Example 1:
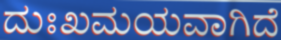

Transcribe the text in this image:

ದುಃಖಮಯವಾಗಿದೆ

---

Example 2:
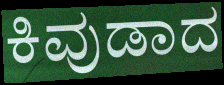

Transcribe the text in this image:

ಕಿವುಡಾದ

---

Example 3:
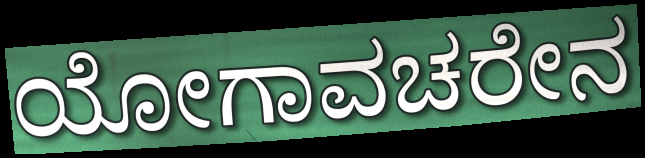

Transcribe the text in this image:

ಯೋಗಾವಚರೇನ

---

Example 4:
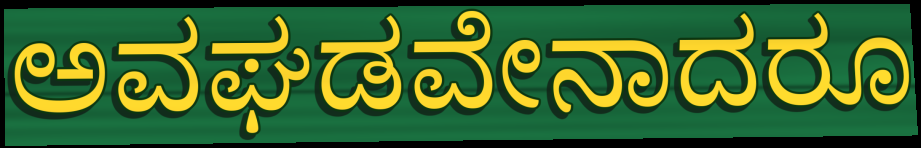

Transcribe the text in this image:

ಅವಘಡವೇನಾದರೂ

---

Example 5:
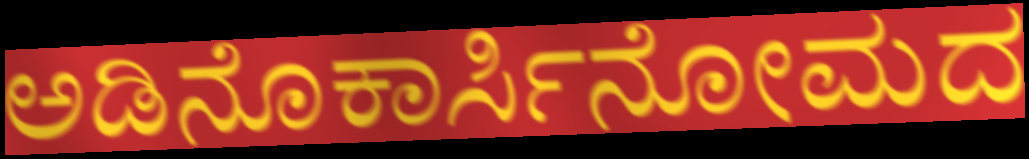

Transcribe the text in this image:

ಅಡಿನೊಕಾರ್ಸಿನೋಮದ